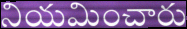
నియమించారు